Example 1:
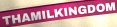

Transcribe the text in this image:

THAMILKINGDOM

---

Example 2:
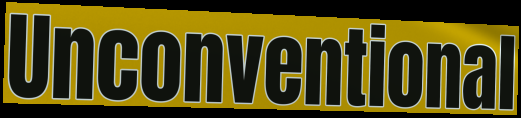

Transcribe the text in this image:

Unconventional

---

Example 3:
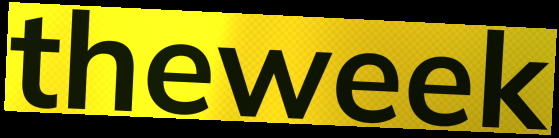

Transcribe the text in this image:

theweek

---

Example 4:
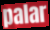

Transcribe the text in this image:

palar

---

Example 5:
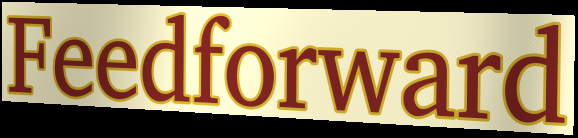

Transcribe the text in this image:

Feedforward